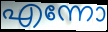
എന്നോ